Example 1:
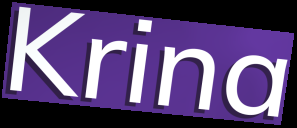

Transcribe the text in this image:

Krina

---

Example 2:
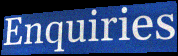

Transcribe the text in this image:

Enquiries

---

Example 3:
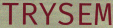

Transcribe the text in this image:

TRYSEM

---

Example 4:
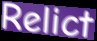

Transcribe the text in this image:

Relict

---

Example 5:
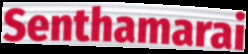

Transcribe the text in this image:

Senthamarai